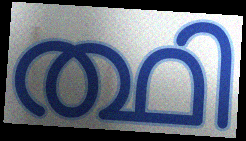
ത്ഥി